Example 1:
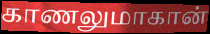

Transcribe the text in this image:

காணலுமாகான்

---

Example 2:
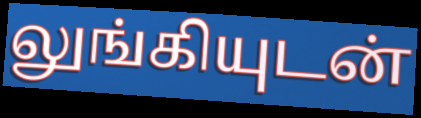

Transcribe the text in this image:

லுங்கியுடன்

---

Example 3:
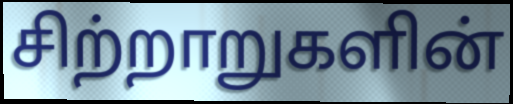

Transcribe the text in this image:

சிற்றாறுகளின்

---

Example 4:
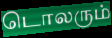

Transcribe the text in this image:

டொலரும்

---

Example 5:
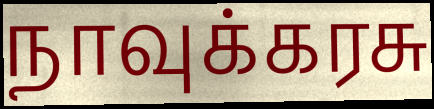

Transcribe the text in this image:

நாவுக்கரசு